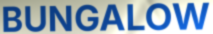
BUNGALOW